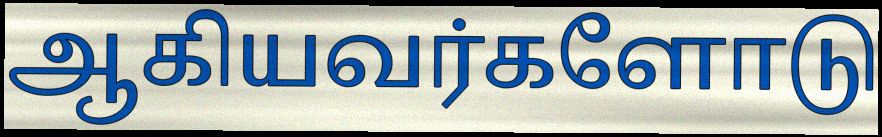
ஆகியவர்களோடு